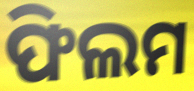
ଫିଲମ